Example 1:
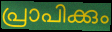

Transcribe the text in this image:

പ്രാപിക്കും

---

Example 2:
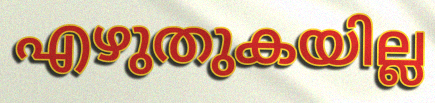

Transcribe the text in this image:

എഴുതുകയില്ല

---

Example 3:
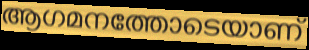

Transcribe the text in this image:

ആഗമനത്തോടെയാണ്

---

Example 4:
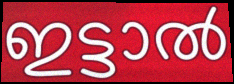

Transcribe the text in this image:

ഇട്ടാൽ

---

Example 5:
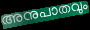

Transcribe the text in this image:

അനുപാതവും